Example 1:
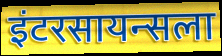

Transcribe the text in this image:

इंटरसायन्सला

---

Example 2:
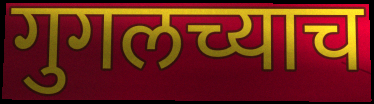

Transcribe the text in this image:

गुगलच्याच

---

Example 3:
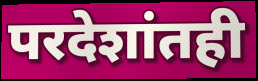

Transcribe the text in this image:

परदेशांतही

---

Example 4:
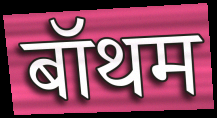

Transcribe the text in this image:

बॉथम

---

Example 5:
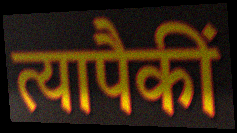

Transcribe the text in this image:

त्यापैकीं